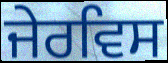
ਜੇਰਵਿਸ